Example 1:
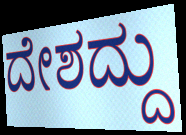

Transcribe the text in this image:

ದೇಶದ್ದು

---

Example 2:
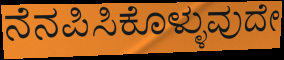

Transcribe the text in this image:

ನೆನಪಿಸಿಕೊಳ್ಳುವುದೇ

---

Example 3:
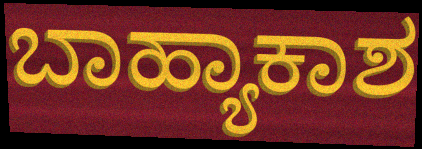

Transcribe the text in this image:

ಬಾಹ್ಯಾಕಾಶ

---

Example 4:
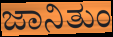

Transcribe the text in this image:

ಜಾನಿತುಂ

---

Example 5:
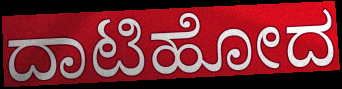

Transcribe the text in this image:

ದಾಟಿಹೋದ